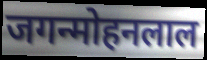
जगन्मोहनलाल